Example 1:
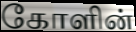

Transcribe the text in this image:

கோளின்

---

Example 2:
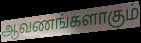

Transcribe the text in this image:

ஆவணங்களாகும்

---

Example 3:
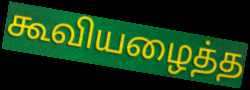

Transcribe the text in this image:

கூவியழைத்த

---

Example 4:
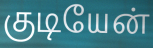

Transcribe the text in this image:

குடியேன்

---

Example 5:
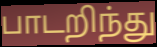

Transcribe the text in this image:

பாடறிந்து